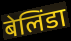
बेलिंडा